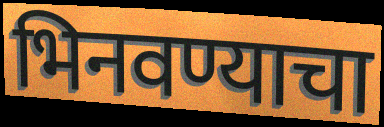
भिनवण्याचा